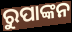
ରୁପାଙ୍କନ